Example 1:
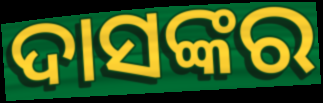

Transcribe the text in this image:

ଦାସଙ୍କର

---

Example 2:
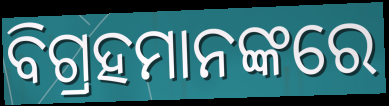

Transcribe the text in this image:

ବିଗ୍ରହମାନଙ୍କରେ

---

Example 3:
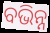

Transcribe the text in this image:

ବଭିନ୍ନ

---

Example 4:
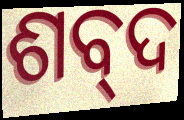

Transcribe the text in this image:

ଶବ୍‌ଦ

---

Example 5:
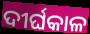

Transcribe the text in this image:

ଦୀର୍ଘକାଳ